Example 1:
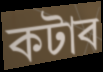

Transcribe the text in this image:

কটাব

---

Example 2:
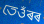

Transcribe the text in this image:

তেওঁৰৰ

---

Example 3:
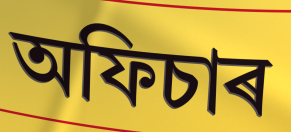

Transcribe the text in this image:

অফিচাৰ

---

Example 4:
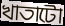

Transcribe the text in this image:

খাতাটো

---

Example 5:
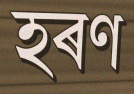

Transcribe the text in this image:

হৰণ